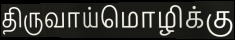
திருவாய்மொழிக்கு